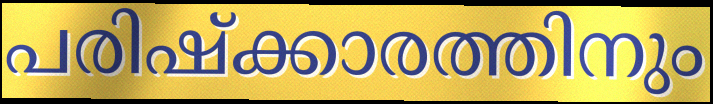
പരിഷ്ക്കാരത്തിനും